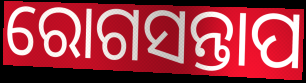
ରୋଗସନ୍ତାପ